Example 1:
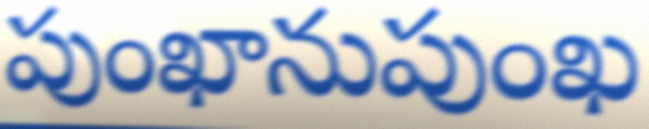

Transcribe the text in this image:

పుంఖానుపుంఖ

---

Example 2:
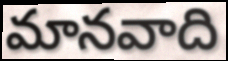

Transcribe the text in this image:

మానవాది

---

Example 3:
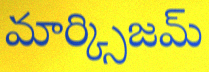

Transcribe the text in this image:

మార్క్సిజమ్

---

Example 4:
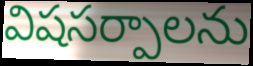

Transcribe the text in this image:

విషసర్పాలను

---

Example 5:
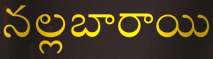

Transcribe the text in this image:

నల్లబారాయి